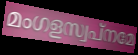
മംഗളസ്വപ്നമേ